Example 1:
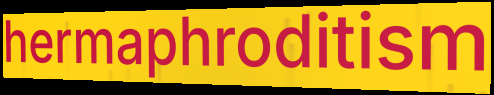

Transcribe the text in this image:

hermaphroditism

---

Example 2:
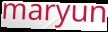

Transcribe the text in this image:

maryun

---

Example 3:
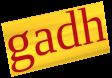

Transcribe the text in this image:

gadh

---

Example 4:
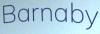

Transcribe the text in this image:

Barnaby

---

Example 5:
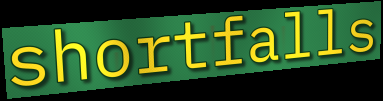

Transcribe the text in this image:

shortfalls